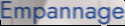
Empannage